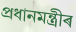
প্ৰধানমন্ত্ৰীৰ